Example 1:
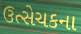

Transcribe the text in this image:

ઉત્સેચકના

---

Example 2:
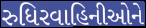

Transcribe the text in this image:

રુધિરવાહિનીઓને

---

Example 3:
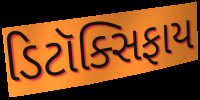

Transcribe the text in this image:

ડિટૉક્સિફાય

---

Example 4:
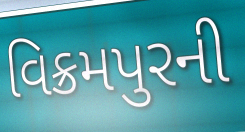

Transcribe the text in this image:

વિક્રમપુરની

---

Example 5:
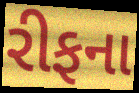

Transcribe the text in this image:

રીફના